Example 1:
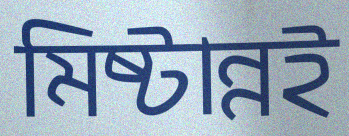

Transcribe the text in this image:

মিষ্টান্নই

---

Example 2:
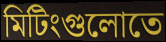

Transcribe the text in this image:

মিটিংগুলোতে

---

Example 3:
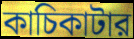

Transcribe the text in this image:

কাচিকাটার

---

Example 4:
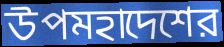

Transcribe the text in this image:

উপমহাদেশের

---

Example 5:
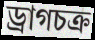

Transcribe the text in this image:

ড্রাগচক্র